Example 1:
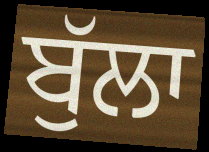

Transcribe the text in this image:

ਬੁੱਲਾ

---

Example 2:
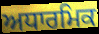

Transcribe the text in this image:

ਅਧਾਰਮਿਕ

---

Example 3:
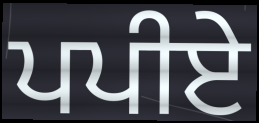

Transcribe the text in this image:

ਪਪੀਏ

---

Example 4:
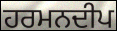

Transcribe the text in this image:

ਹਰਮਨਦੀਪ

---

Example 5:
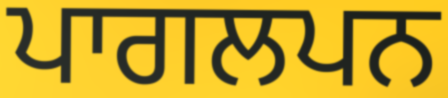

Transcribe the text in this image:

ਪਾਗਲਪਨ